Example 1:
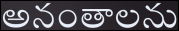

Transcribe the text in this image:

అనంతాలను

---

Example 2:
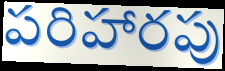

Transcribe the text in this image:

పరిహారపు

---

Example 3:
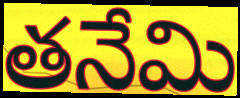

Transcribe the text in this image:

తనేమి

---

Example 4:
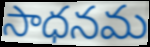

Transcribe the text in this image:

సాధనమ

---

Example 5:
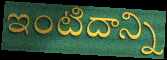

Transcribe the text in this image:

ఇంటిదాన్ని